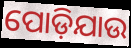
ପୋଡ଼ିଯାଉ